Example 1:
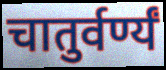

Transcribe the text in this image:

चातुर्वर्ण्यं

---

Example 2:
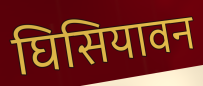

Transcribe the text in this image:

घिसियावन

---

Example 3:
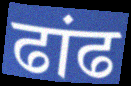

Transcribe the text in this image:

ढांढ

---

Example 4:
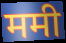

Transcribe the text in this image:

ममी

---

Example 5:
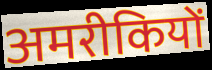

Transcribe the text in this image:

अमरीकियों